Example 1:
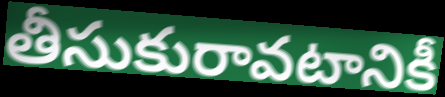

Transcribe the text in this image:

తీసుకురావటానికీ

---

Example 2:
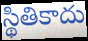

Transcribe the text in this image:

స్థితికాదు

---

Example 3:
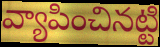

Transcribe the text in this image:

వ్యాపించినట్టి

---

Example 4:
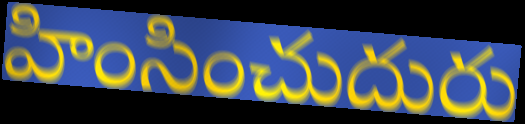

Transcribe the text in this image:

హింసించుదురు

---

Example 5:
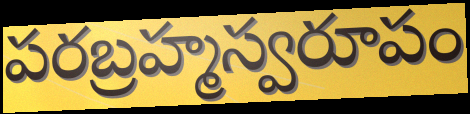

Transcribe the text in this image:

పరబ్రహ్మస్వరూపం